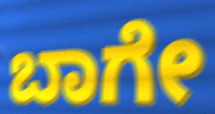
ಬಾಗೇ